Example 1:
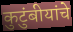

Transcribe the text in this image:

कुटुंबीयांचे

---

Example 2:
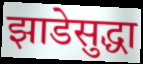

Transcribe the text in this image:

झाडेसुद्धा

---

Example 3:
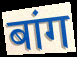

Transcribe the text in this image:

बांग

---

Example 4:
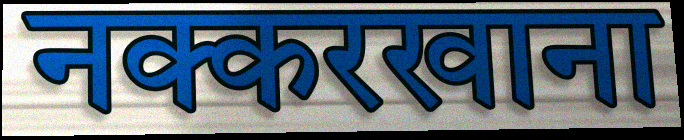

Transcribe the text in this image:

नक्करखाना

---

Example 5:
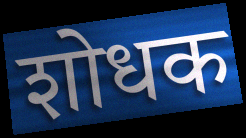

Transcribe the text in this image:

शोधक